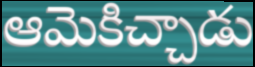
ఆమెకిచ్చాడు